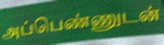
அப்பெண்ணுடன்